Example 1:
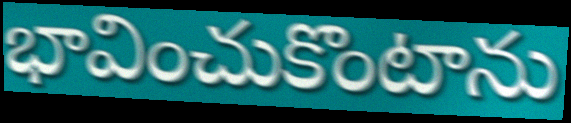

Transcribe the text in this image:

భావించుకొంటాను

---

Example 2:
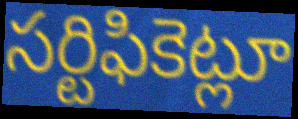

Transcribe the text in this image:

సర్టిఫికెట్లూ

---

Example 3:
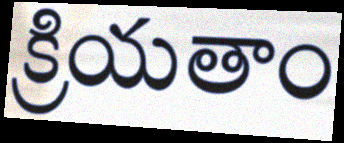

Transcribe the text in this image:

క్రియతాం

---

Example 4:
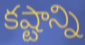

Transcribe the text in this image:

కష్టాన్ని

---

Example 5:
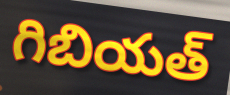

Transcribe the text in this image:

గిబియత్